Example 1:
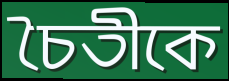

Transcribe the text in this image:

চৈতীকে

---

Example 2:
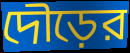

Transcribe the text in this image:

দৌড়ের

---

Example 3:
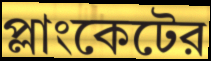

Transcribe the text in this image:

প্লাংকেটের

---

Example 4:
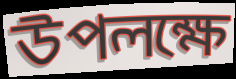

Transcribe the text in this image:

উপলক্ষে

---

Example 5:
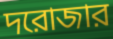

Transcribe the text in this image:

দরোজার